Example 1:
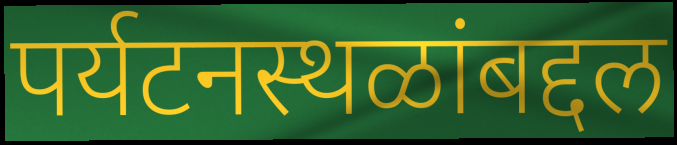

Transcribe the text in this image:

पर्यटनस्थळांबद्दल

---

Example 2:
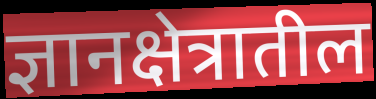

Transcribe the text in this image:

ज्ञानक्षेत्रातील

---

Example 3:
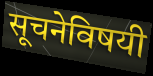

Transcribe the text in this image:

सूचनेविषयी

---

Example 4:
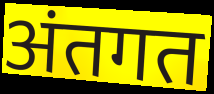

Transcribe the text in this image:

अंतगत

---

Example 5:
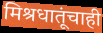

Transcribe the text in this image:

मिश्रधातूंचाही